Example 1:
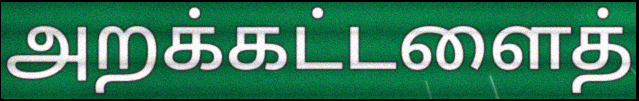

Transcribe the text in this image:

அறக்கட்டளைத்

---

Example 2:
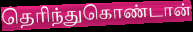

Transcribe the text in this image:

தெரிந்துகொண்டான்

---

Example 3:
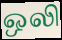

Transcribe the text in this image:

ஒலி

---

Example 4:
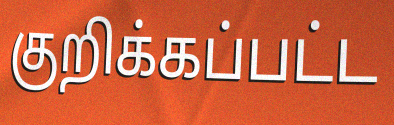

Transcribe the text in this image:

குறிக்கப்பட்ட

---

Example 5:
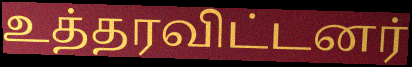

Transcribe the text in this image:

உத்தரவிட்டனர்